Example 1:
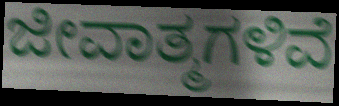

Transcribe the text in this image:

ಜೀವಾತ್ಮಗಳಿವೆ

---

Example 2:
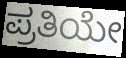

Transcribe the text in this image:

ಪ್ರತಿಯೇ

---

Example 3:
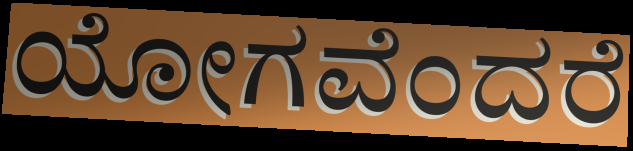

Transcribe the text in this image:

ಯೋಗವೆಂದರೆ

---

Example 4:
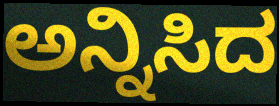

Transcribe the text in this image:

ಅನ್ನಿಸಿದ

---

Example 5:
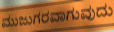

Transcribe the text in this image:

ಮುಜುಗರವಾಗುವುದು